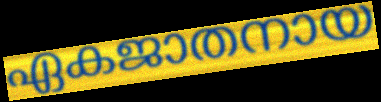
ഏകജാതനായ